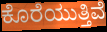
ಕೊರೆಯುತ್ತಿವೆ